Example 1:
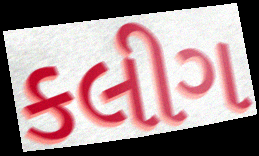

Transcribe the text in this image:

કલીગ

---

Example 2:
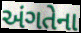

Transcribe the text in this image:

અંગતેના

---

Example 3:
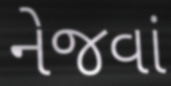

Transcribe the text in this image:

નેજવાં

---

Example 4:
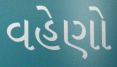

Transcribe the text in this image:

વહેણો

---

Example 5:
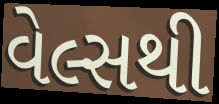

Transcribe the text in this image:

વેલ્સથી